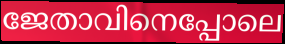
ജേതാവിനെപ്പോലെ